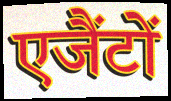
एजैंटों